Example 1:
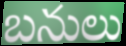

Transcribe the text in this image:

బనులు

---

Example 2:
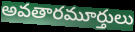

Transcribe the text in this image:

అవతారమూర్తులు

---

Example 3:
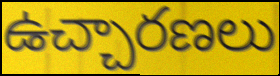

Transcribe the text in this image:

ఉచ్చారణలు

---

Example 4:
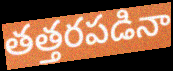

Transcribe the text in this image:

తత్తరపడినా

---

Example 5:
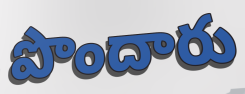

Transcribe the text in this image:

పొందారు